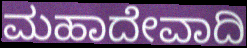
ಮಹಾದೇವಾದಿ